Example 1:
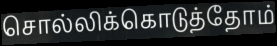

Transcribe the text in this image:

சொல்லிக்கொடுத்தோம்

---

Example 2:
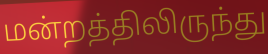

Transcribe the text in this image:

மன்றத்திலிருந்து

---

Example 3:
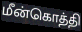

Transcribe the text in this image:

மீன்கொத்தி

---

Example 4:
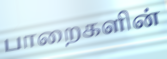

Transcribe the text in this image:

பாறைகளின்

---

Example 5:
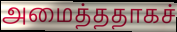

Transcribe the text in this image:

அமைத்ததாகச்